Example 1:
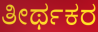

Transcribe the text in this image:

ತೀರ್ಥಕರ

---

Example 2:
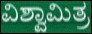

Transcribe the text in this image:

ವಿಶ್ವಾಮಿತ್ರ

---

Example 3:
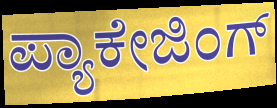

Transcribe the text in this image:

ಪ್ಯಾಕೇಜಿಂಗ್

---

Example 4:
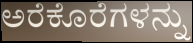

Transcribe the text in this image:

ಅರೆಕೊರೆಗಳನ್ನು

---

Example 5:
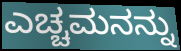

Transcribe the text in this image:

ಎಚ್ಚಮನನ್ನು